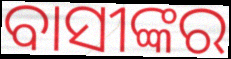
ବାସୀଙ୍କର